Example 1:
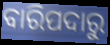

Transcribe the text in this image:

ବାରିପଦାରୁ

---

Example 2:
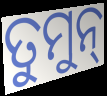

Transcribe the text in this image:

ତୁମୁନ୍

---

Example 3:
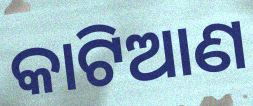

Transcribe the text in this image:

କାଟିଆଣ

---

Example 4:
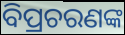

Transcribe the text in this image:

ବିପ୍ରଚରଣଙ୍କ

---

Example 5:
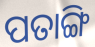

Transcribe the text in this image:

ପତାଙ୍ଗି